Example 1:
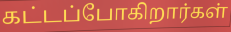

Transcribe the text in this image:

கட்டப்போகிறார்கள்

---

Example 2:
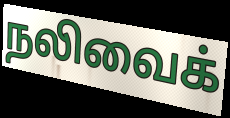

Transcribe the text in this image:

நலிவைக்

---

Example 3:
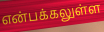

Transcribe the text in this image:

என்பக்கலுள்ள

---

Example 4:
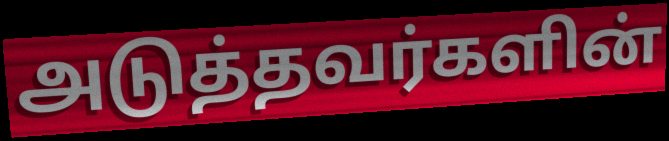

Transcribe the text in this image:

அடுத்தவர்களின்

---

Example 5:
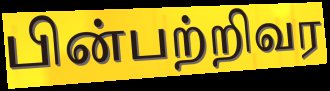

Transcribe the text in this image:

பின்பற்றிவர